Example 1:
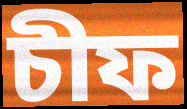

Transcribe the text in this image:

চীফ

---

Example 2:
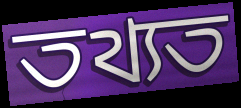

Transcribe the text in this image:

তথ্যত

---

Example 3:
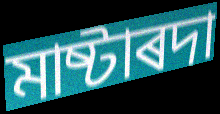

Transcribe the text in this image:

মাষ্টাৰদা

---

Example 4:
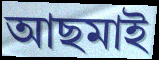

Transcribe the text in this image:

আছমাই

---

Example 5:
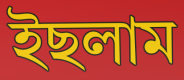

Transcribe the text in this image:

ইছলাম